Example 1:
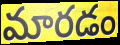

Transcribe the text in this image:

మారడం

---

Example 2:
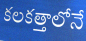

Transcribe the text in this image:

కలకత్తాలోనే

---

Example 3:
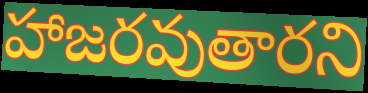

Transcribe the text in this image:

హాజరవుతారని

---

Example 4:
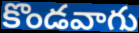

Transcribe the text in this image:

కొండవాగు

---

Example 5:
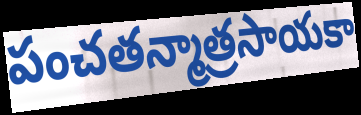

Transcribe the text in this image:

పంచతన్మాత్రసాయకా